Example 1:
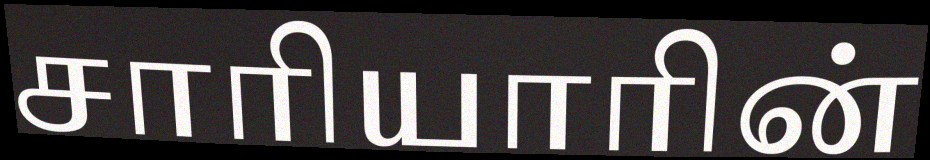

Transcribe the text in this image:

சாரியாரின்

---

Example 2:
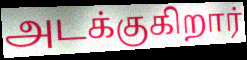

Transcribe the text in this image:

அடக்குகிறார்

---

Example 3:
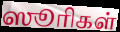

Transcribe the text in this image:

ஸூரிகள்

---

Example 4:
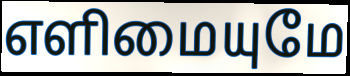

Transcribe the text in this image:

எளிமையுமே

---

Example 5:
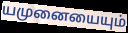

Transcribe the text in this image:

யமுனையையும்